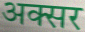
अक्सर